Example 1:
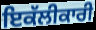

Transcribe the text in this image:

ਇਕੱਲੀਕਾਰੀ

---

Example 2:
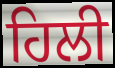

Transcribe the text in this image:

ਹਿਲੀ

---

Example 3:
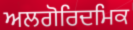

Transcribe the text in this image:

ਅਲਗੋਰਿਦਮਿਕ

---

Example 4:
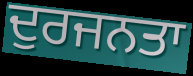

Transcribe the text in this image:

ਦੁਰਜਨਤਾ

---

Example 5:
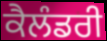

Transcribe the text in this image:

ਕੈਲੰਡਰੀ